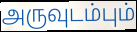
அருவுடம்பும்